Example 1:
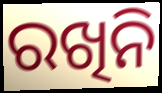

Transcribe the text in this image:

ରଖିନି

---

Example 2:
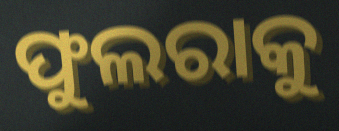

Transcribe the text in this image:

ଫୁଲରାକୁ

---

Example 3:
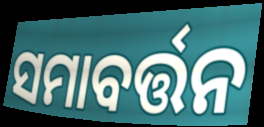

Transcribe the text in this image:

ସମାବର୍ତ୍ତନ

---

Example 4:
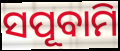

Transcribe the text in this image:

ସପୂବାମି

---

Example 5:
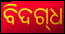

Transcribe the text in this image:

ବିଦଗ୍‍ଧ